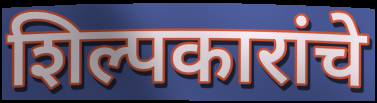
शिल्पकारांचे